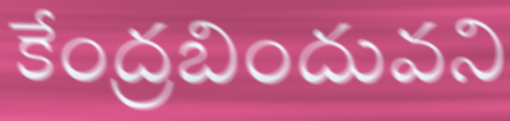
కేంద్రబిందువని